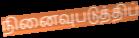
நினைவுபடுத்திப்